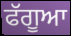
ਫੱਗੂਆ